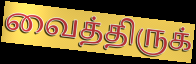
வைத்திருக்